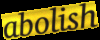
abolish